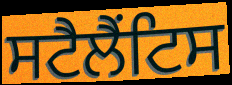
ਸਟੈਲੈਂਟਿਸ